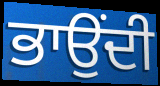
ਭਾਉਂਦੀ